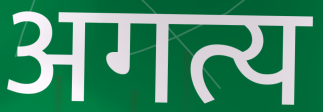
अगत्य